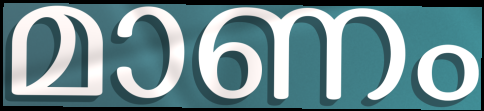
മാണം